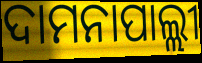
ଦାମନାପାଲ୍ଲୀ